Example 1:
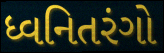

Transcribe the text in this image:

ધ્વનિતરંગો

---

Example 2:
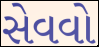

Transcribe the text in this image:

સેવવો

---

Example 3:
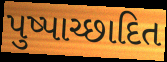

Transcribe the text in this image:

પુષ્પાચ્છાદિત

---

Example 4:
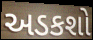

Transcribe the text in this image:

અડકશો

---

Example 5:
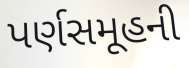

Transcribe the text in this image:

પર્ણસમૂહની